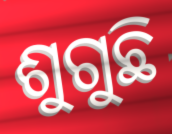
ଶୁଗୁଛି